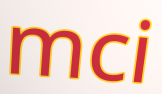
mci